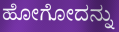
ಹೋಗೋದನ್ನು